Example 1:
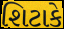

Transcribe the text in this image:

શિટાકે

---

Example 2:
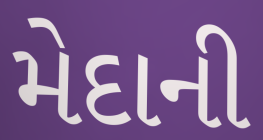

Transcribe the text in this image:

મેદાની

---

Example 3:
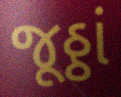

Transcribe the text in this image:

જૂઠ્ઠાં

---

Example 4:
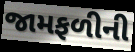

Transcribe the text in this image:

જામફળીની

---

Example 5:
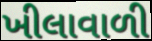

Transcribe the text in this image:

ખીલાવાળી